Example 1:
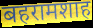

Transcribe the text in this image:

बहरामशाह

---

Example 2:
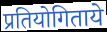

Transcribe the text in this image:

प्रतियोगिताये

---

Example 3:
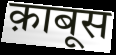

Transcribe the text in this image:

क़ाबूस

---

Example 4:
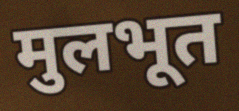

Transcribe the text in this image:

मुलभूत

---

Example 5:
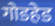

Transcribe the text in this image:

गोडहेड